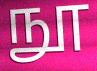
நூ